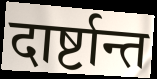
दार्ष्टान्त